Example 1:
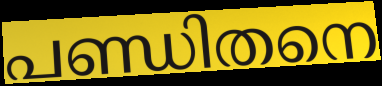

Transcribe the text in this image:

പണ്ഡിതനെ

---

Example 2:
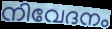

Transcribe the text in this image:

നിവേദനം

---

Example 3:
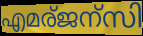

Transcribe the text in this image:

എമര്ജന്സി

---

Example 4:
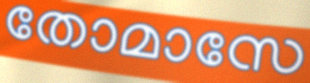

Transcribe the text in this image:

തോമാസേ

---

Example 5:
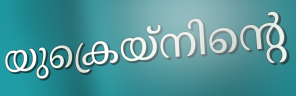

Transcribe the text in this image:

യുക്രെയ്നിന്റെ